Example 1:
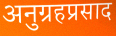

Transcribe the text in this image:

अनुग्रहप्रसाद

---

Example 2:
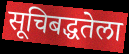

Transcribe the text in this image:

सूचिबद्धतेला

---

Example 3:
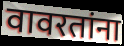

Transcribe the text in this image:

वावरतांना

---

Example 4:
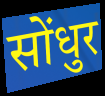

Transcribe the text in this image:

सोंधुर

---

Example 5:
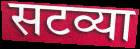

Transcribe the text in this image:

सटव्या